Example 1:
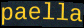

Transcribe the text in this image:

paella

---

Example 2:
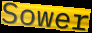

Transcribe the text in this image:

Sower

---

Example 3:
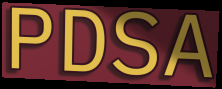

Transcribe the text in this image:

PDSA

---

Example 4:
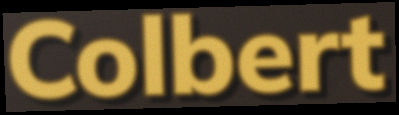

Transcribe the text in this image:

Colbert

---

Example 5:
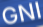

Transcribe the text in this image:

GNI